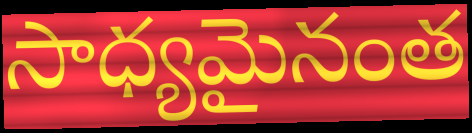
సాధ్యమైనంత